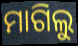
ମାଗିଲୁ